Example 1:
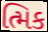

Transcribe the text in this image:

ત્મિક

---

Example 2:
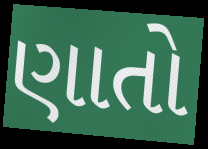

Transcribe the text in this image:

ણાતો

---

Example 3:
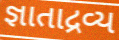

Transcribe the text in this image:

જ્ઞાતાદ્રવ્ય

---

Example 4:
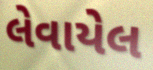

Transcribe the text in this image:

લેવાયેલ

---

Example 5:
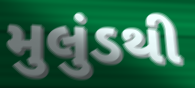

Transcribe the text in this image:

મુલુંડથી